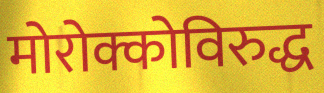
मोरोक्कोविरुद्ध